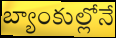
బ్యాంకుల్లోనే